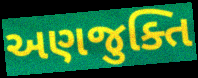
અણજુક્તિ